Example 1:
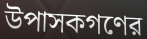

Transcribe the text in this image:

উপাসকগণের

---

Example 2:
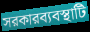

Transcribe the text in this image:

সরকারব্যবস্থাটি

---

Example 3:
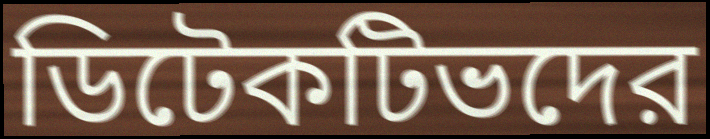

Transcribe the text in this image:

ডিটেকটিভদের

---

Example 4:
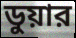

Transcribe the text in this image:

ডুয়ার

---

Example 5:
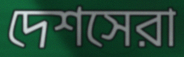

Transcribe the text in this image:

দেশসেরা